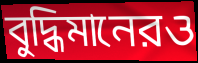
বুদ্ধিমানেরও